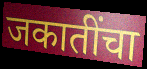
जकातींचा